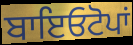
ਬਾਇਓਟੋਪਾਂ